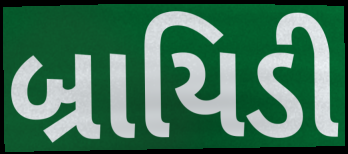
બ્રાયિડી